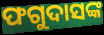
ଫଗୁଦାସଙ୍କ